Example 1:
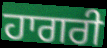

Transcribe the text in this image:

ਹਾਗਰੀ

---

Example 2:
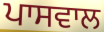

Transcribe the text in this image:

ਪਾਸਵਾਲ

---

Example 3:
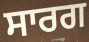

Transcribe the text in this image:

ਸਾਰਗ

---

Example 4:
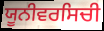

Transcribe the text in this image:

ਯੂਨੀਵਰਸਿਚੀ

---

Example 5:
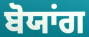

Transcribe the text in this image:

ਬੋਯਾਂਗ